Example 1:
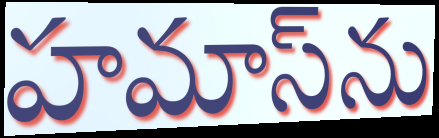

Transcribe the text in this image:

హమాస్‌ను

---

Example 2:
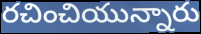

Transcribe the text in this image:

రచించియున్నారు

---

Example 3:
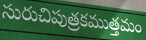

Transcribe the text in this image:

సురుచిపుత్రకముత్తమం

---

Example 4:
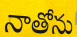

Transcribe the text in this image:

నాతోను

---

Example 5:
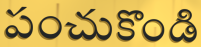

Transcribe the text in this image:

పంచుకొండి